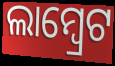
ଲାମ୍ୱ୍ରେଟ